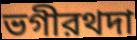
ভগীরথদা